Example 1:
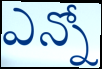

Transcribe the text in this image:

ఎన్నో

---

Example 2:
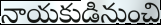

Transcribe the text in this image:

నాయకుడినుంచి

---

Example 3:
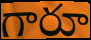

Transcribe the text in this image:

గారూ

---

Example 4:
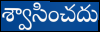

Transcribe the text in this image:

శ్వాసించదు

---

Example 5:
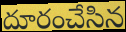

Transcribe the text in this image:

దూరంచేసిన